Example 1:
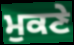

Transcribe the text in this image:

ਮੁਕਣੇ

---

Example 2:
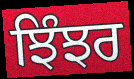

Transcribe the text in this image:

ਝਿੰਝਰ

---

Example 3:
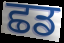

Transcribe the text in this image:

ਛਡ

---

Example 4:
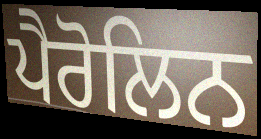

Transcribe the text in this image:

ਪੈਰੋਲਿਨ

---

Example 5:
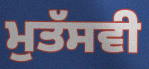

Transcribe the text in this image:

ਮੁਤੱਸਵੀ